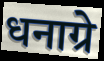
धनाग्रे